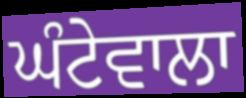
ਘੰਟੇਵਾਲਾ